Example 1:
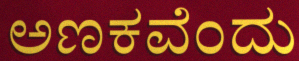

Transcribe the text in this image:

ಅಣಕವೆಂದು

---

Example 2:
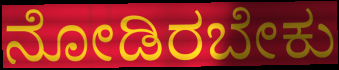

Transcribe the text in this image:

ನೋಡಿರಬೇಕು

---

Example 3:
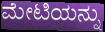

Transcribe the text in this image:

ಮೇಟಿಯನ್ನು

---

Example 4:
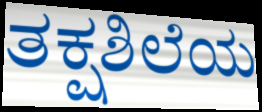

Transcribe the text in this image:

ತಕ್ಷಶಿಲೆಯ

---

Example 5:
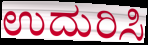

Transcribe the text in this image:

ಉದುರಿಸಿ